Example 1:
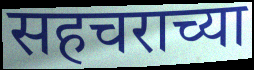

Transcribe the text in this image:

सहचराच्या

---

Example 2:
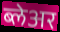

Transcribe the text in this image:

ब्लेअर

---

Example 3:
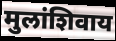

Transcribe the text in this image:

मुलांशिवाय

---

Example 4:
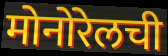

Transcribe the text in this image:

मोनोरेलची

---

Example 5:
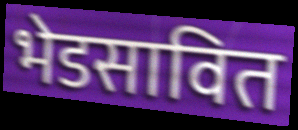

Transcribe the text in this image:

भेडसावित